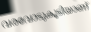
വരവോടുകൂടിയാണ്